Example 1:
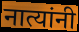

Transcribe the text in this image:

नात्यांनी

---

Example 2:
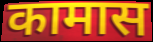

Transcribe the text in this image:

कामास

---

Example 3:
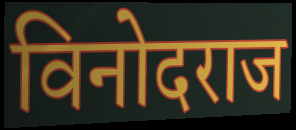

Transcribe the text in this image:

विनोदराज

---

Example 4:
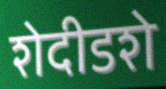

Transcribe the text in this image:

शेदीडशे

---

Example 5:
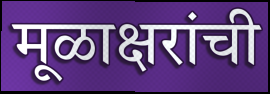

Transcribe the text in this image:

मूळाक्षरांची